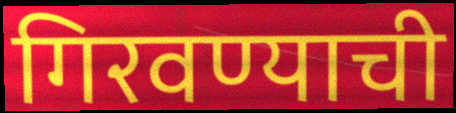
गिरवण्याची